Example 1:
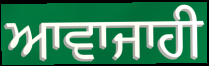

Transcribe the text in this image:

ਆਵਾਜਾਹੀ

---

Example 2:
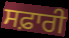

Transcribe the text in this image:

ਸਫ਼ਾਰੀ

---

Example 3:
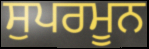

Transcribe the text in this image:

ਸੁਪਰਮੂਨ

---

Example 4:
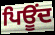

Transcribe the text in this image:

ਪਿਊਂਦ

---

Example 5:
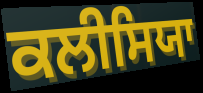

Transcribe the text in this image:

ਕਲੀਸਿਯਾ